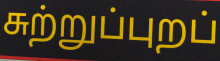
சுற்றுப்புறப்